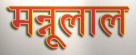
मन्नूलाल